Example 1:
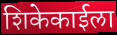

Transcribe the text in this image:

शिकेकाईला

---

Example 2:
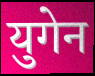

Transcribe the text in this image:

युगेन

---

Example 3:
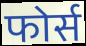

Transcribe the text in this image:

फोर्स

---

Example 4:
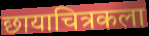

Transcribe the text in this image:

छायाचित्रकला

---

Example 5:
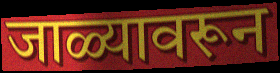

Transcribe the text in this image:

जाळ्यावरून